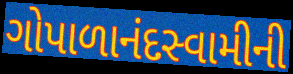
ગોપાળાનંદસ્વામીની